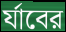
র্যাবের